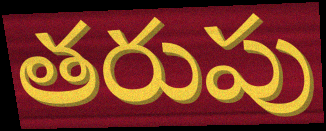
తరుపు